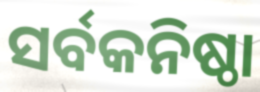
ସର୍ବକନିଷ୍ଠା